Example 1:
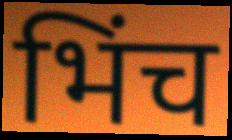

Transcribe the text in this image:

भिंच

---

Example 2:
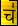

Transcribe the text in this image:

च॑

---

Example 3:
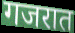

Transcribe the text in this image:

गजरात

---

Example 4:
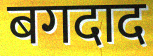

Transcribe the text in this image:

बगदाद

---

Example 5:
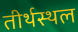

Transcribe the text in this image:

तीर्थस्थल